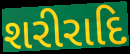
શરીરાદિ